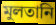
মুলতানি